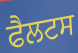
ਫੈਲਟਸ